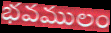
భవములం